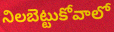
నిలబెట్టుకోవాలో